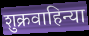
शुक्रवाहिन्या